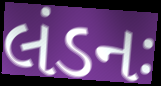
લંડનઃ